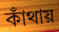
কাঁথায়